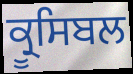
ਕ੍ਰੂਸਿਬਲ